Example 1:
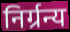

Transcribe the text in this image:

निर्ग्रन्य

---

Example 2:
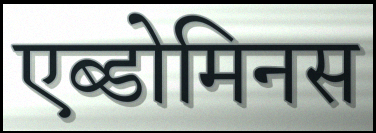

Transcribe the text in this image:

एब्डोमिनस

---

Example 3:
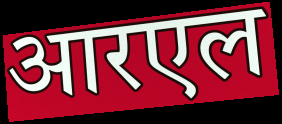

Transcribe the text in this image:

आरएल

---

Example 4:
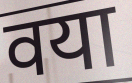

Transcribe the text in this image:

वया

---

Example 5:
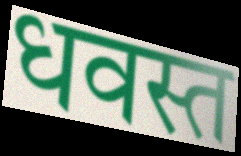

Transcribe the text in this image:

धवस्त